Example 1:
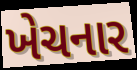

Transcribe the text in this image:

ખેચનાર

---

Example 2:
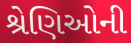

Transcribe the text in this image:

શ્રેણિઓની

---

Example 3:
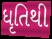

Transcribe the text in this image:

ધૃતિથી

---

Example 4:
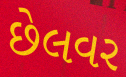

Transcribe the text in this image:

છેલવર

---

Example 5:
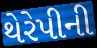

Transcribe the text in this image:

થેરેપીની